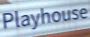
Playhouse